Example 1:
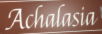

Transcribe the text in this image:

Achalasia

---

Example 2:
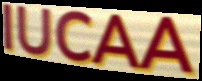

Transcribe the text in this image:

IUCAA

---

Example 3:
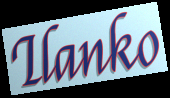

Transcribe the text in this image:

Ilanko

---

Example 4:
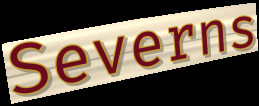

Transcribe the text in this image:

Severns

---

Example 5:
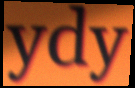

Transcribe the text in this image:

ydy